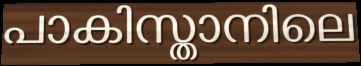
പാകിസ്താനിലെ